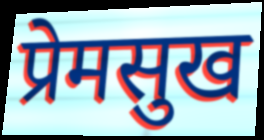
प्रेमसुख